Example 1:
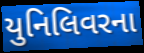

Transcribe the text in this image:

યુનિલિવરના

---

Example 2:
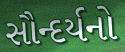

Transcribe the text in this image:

સૌન્દર્યનો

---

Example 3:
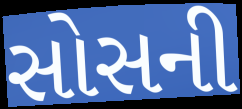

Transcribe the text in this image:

સોસની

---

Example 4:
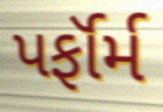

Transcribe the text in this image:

પર્ફૉર્મ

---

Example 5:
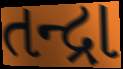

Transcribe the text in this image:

તન્દ્રા